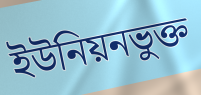
ইউনিয়নভুক্ত